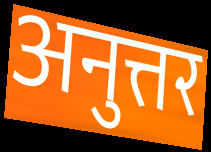
अनुत्तर